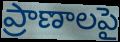
ప్రాణాలపై